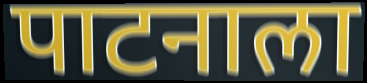
पाटनाला